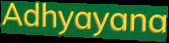
Adhyayana